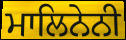
ਮਾਲਿਨੇਨੀ